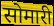
सोमारी